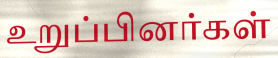
உறுப்பினர்கள்